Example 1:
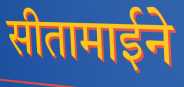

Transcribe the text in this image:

सीतामाईने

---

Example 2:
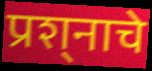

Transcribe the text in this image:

प्रश्नाचे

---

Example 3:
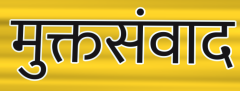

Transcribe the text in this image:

मुक्तसंवाद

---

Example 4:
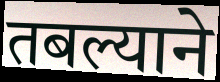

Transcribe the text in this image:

तबल्याने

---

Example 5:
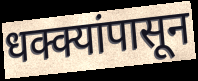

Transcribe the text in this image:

धक्क्यांपासून